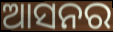
ଆସନର